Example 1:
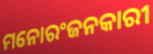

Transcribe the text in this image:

ମନୋରଂଜନକାରୀ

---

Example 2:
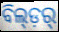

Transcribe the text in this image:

ବିଲ୍ଡ଼ର୍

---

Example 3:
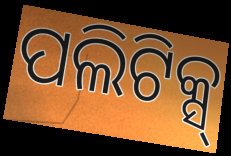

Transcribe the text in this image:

ପଲିଟିକ୍ସ୍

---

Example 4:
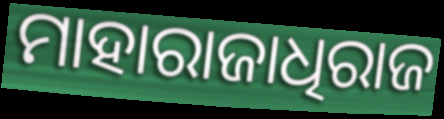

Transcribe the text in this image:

ମାହାରାଜାଧିରାଜ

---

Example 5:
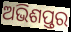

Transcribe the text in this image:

ଅଭିଶପ୍ତର